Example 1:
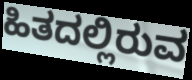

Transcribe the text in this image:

ಹಿತದಲ್ಲಿರುವ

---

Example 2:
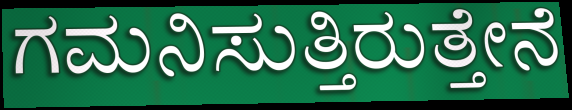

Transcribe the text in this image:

ಗಮನಿಸುತ್ತಿರುತ್ತೇನೆ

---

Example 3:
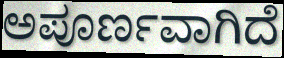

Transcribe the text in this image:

ಅಪೂರ್ಣವಾಗಿದೆ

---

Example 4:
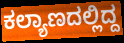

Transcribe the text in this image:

ಕಲ್ಯಾಣದಲ್ಲಿದ್ದ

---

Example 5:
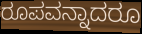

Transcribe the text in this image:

ರೂಪವನ್ನಾದರೂ